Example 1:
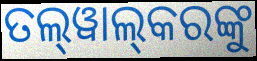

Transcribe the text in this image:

ତଲ୍‌ୱାଲ୍‌କରଙ୍କୁ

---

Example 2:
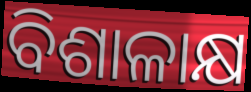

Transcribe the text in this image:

ବିଶାଳାକ୍ଷ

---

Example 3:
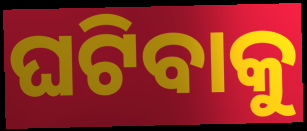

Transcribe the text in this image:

ଘଟିବାକୁ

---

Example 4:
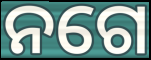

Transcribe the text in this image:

ନଗେ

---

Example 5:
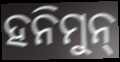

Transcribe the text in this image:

ହନିମୁନ୍